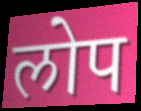
लोप